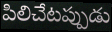
పిలిచేటప్పుడు